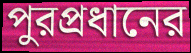
পুরপ্রধানের